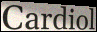
Cardiol